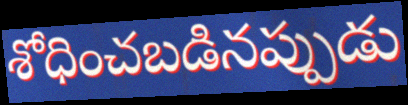
శోధించబడినప్పుడు